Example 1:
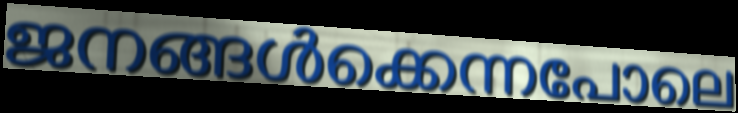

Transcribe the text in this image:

ജനങ്ങൾക്കെന്നപോലെ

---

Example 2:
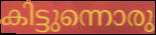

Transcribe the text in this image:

കിട്ടുന്നൊരു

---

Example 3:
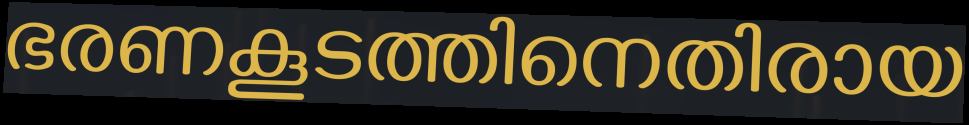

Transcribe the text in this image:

ഭരണകൂടത്തിനെതിരായ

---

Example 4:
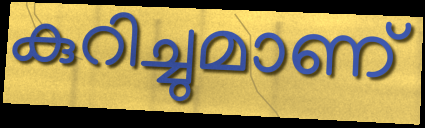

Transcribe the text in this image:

കുറിച്ചുമാണ്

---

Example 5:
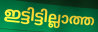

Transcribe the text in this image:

ഇട്ടിട്ടില്ലാത്ത